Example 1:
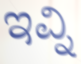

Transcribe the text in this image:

ಇವ್ನಿ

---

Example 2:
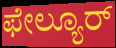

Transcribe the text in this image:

ಫೇಲ್ಯೂರ್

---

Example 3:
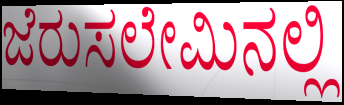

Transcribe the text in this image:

ಜೆರುಸಲೇಮಿನಲ್ಲಿ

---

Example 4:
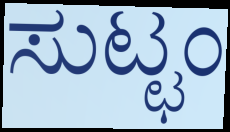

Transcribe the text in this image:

ಸುಟ್ಟಂ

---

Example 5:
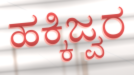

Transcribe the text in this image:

ಹಕ್ಕಿಜ್ವರ